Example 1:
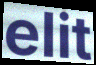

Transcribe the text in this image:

elit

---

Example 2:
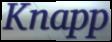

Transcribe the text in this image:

Knapp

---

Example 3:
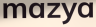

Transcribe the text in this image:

mazya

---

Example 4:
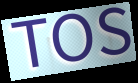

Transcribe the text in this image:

TOS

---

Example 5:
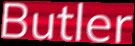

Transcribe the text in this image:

Butler